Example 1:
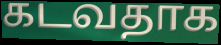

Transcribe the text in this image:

கடவதாக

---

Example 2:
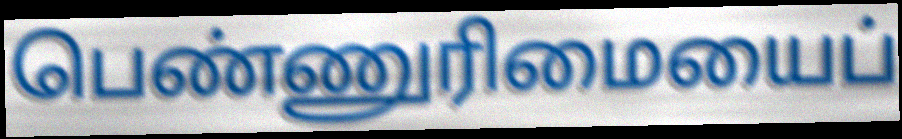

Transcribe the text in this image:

பெண்ணுரிமையைப்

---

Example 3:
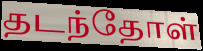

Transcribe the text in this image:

தடந்தோள்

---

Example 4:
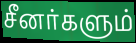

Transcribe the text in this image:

சீனர்களும்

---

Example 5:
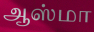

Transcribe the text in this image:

ஆஸ்மா